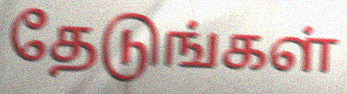
தேடுங்கள்